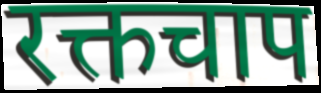
रक्तचाप